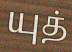
யுத்